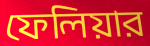
ফেলিয়ার